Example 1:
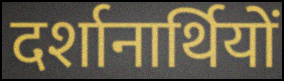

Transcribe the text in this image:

दर्शानार्थियों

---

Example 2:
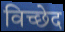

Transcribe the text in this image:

विच्छेद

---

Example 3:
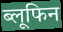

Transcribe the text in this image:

ब्लूफिन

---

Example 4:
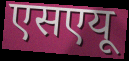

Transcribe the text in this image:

एसएयू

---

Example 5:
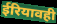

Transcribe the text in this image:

ईरियावही